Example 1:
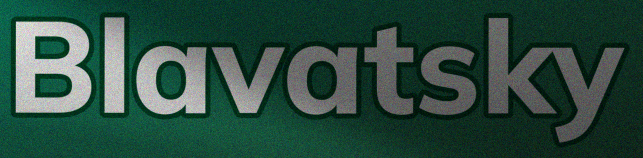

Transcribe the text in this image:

Blavatsky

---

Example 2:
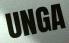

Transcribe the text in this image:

UNGA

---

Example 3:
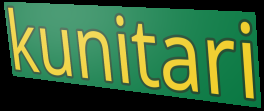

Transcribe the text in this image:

kunitari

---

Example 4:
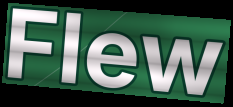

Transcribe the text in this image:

Flew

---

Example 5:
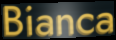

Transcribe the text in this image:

Bianca